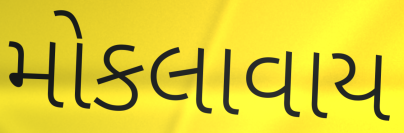
મોકલાવાય